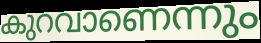
കുറവാണെന്നും